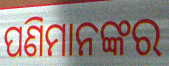
ପଣିମାନଙ୍କର